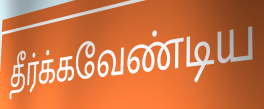
தீர்க்கவேண்டிய